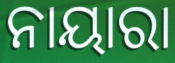
ନାୟାରା